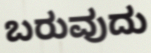
ಬರುವುದು